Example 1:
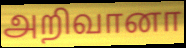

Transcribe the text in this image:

அறிவானா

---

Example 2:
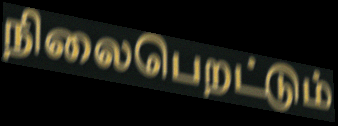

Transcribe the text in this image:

நிலைபெறட்டும்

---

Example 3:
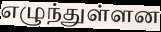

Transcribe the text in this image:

எழுந்துள்ளன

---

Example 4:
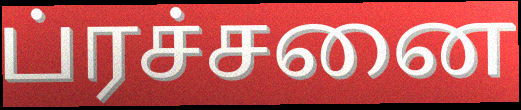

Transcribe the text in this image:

ப்ரச்சனை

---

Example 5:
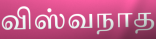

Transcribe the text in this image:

விஸ்வநாத